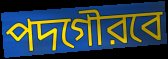
পদগৌরবে